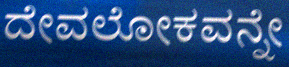
ದೇವಲೋಕವನ್ನೇ